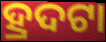
ହ୍ରଦଟା